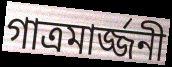
গাত্রমার্জ্জনী